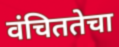
वंचिततेचा